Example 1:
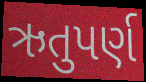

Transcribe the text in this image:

ઋતુપર્ણ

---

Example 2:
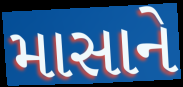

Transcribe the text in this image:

માસાને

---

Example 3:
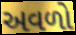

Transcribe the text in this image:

અવળો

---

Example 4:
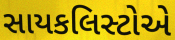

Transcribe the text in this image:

સાયકલિસ્ટોએ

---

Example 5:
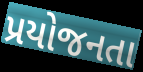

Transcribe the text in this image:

પ્રયોજનતા